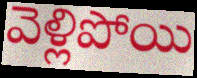
వెళ్లిపోయి